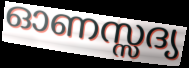
ഓണസ്സദ്യ